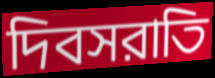
দিবসরাতি